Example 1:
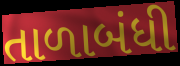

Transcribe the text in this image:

તાળાબંધી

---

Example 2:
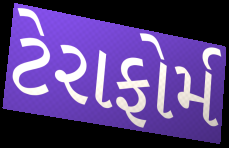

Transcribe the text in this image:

ટેરાફોર્મ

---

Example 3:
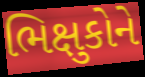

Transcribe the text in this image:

ભિક્ષુકોને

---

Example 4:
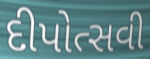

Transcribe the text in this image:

દીપોત્સવી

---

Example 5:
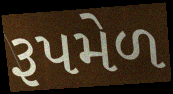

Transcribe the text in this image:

રૂપમેળ